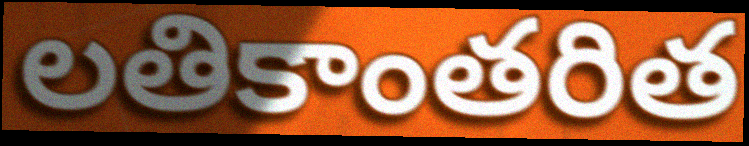
లతికాంతరిత